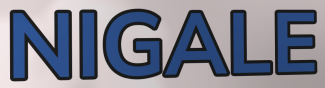
NIGALE